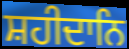
ਸ਼ਹੀਦਾਨਿ